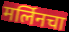
मर्लिनचा